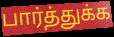
பார்த்துக்க